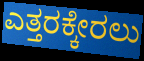
ಎತ್ತರಕ್ಕೇರಲು